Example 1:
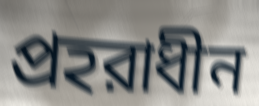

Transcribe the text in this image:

প্রহরাধীন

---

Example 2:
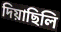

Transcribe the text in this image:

দিয়াছিলি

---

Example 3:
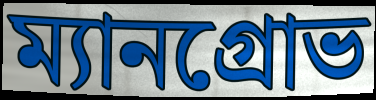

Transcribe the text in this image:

ম্যানগ্রোভ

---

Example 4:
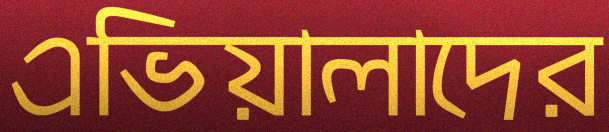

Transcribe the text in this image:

এভিয়ালাদের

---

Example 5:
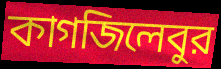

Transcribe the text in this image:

কাগজিলেবুর